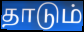
தாடும்